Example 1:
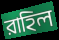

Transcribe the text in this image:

রাহিল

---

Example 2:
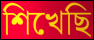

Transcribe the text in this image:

শিখেছি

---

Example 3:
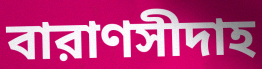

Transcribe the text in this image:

বারাণসীদাহ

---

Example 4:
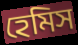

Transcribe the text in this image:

হেমিস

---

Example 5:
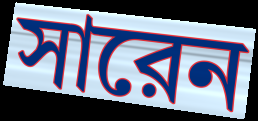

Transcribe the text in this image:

সারেন